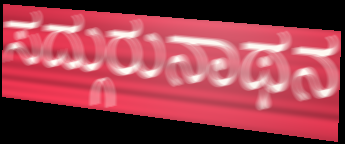
ಸದ್ಗುರುನಾಥನ